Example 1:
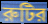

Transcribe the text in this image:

রুটির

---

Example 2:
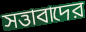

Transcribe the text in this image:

সত্তাবাদের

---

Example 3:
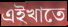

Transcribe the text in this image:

এইখাতে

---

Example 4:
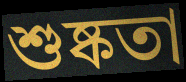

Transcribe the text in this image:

শুষ্কতা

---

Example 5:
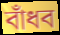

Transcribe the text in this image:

বাঁধব